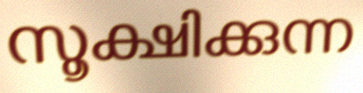
സൂക്ഷിക്കുന്ന